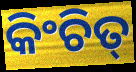
କିଂଚିତ୍